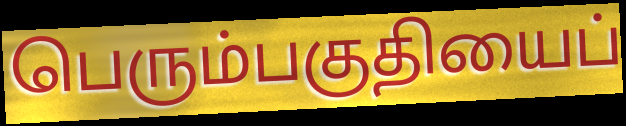
பெரும்பகுதியைப்